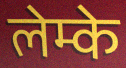
लेम्के